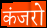
कंजरो